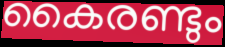
കൈരണ്ടും